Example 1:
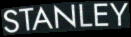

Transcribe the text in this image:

STANLEY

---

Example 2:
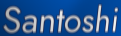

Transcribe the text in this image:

Santoshi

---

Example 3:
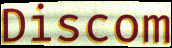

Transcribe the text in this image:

Discom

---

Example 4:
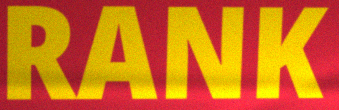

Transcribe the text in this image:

RANK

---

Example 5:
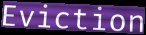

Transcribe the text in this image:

Eviction